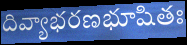
దివ్యాభరణభూషితః